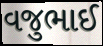
વજુભાઈ